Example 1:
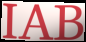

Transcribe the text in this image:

IAB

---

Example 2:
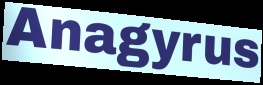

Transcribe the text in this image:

Anagyrus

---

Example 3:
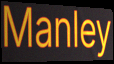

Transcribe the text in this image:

Manley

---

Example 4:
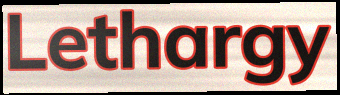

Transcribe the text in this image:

Lethargy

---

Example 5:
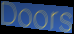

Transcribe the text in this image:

Doors